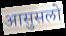
आसुसलो